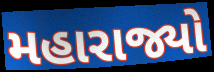
મહારાજ્યો